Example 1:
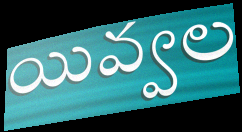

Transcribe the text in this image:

యివ్వల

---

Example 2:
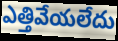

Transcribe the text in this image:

ఎత్తివేయలేదు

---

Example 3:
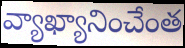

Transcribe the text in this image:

వ్యాఖ్యానించేంత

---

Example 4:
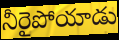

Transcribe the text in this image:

నీరైపోయాడు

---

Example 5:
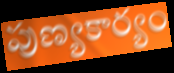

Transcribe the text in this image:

పుణ్యకార్యం